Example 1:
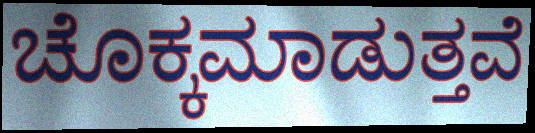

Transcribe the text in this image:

ಚೊಕ್ಕಮಾಡುತ್ತವೆ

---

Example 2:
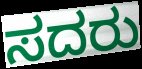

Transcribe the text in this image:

ಸದರು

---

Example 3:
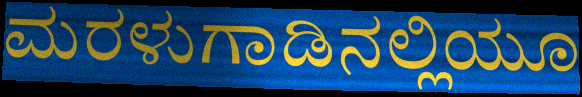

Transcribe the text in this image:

ಮರಳುಗಾಡಿನಲ್ಲಿಯೂ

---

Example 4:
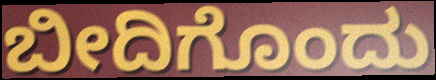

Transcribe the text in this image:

ಬೀದಿಗೊಂದು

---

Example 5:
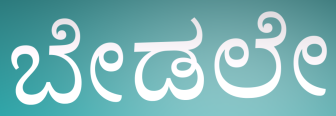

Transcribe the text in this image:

ಬೇಡಲೇ